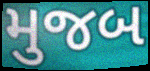
મુજબ